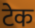
टेक